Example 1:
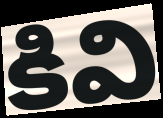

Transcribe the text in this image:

కివి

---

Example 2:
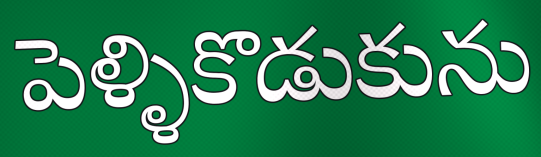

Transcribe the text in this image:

పెళ్ళికొడుకును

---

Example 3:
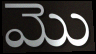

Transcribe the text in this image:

మొ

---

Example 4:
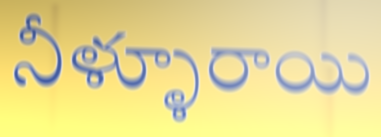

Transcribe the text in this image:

నీళ్ళూరాయి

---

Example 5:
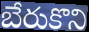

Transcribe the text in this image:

బేరుకొని